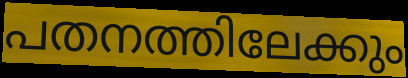
പതനത്തിലേക്കും